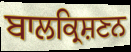
ਬਾਲਕ੍ਰਿਸ਼ਣਨ